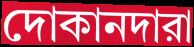
দোকানদারা